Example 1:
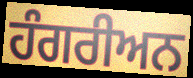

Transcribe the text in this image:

ਹੰਗਰੀਅਨ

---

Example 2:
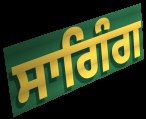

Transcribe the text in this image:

ਸਾਗਿੰਗ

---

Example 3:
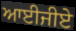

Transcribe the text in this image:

ਆਈਜੀਏ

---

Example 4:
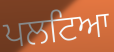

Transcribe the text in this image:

ਪਲਟਿਆ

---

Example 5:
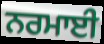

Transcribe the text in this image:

ਨਰਮਾਈ